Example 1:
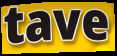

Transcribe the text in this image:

tave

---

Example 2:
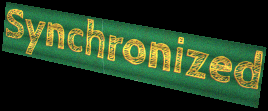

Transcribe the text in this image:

Synchronized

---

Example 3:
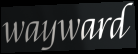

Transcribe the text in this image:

wayward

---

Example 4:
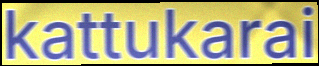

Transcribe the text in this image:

kattukarai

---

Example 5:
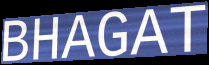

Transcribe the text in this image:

BHAGAT